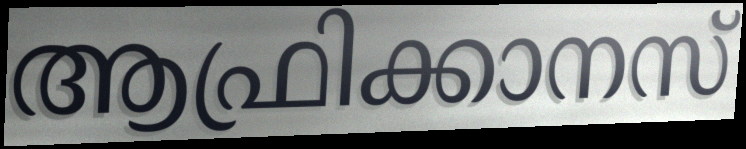
ആഫ്രിക്കാനസ്